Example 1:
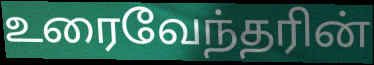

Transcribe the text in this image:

உரைவேந்தரின்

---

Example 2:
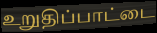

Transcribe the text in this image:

உறுதிப்பாட்டை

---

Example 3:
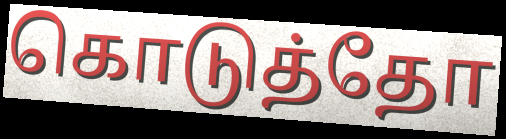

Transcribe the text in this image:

கொடுத்தோ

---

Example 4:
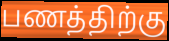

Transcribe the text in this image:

பணத்திற்கு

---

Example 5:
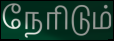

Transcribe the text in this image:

நேரிடும்